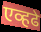
एव्हढे